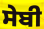
ਸੇਬੀ